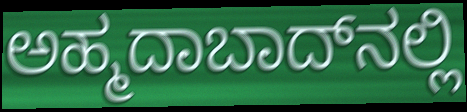
ಅಹ್ಮದಾಬಾದ್‍ನಲ್ಲಿ